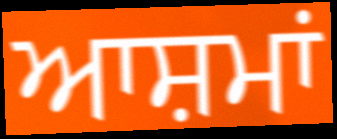
ਆਸ਼ਮਾਂ